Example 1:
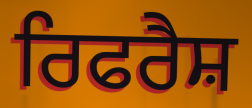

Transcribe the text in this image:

ਰਿਫਰੈਸ਼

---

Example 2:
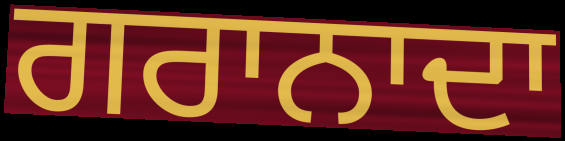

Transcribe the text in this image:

ਗਰਾਨਾਦਾ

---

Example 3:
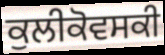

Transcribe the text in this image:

ਕੁਲੀਕੋਵਸਕੀ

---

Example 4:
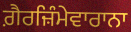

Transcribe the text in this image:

ਗ਼ੈਰਜ਼ਿੰਮੇਵਾਰਾਨਾ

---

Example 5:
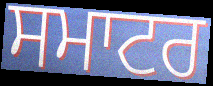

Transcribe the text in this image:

ਸਮਾਟਰ